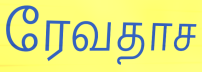
ரேவதாச